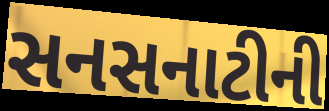
સનસનાટીની